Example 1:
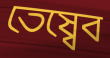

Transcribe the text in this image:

তেষ্বেব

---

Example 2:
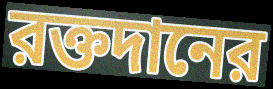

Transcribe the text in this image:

রক্তদানের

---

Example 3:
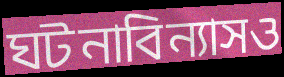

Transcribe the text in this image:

ঘটনাবিন্যাসও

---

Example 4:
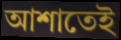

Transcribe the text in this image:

আশাতেই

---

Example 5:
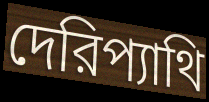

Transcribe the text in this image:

দেরিপ্যাথি